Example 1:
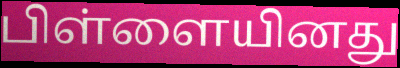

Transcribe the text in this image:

பிள்ளையினது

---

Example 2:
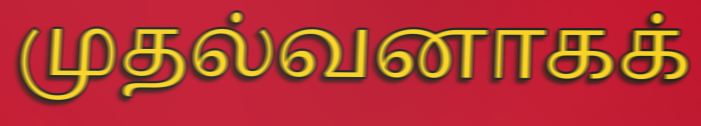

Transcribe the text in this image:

முதல்வனாகக்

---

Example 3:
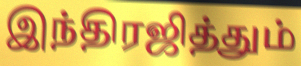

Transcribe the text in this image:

இந்திரஜித்தும்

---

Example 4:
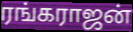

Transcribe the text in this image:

ரங்கராஜன்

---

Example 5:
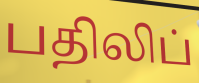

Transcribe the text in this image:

பதிலிப்